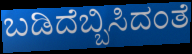
ಬಡಿದೆಬ್ಬಿಸಿದಂತೆ